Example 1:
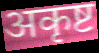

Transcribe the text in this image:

अकृष्ट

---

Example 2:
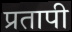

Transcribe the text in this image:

प्रतापी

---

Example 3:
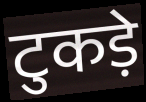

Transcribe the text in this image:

टुकड़े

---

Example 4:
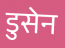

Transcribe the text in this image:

डुसेन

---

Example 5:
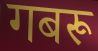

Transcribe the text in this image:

गबरू